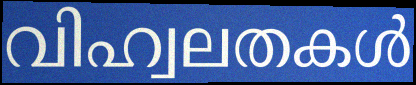
വിഹ്വലതകൾ